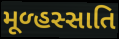
મૂળ્હસ્સાતિ